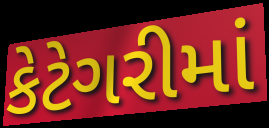
કેટેગરીમાં